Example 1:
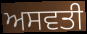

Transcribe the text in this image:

ਅਸਵਤੀ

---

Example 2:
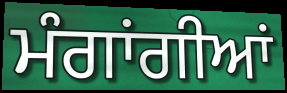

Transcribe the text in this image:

ਮੰਗਾਂਗੀਆਂ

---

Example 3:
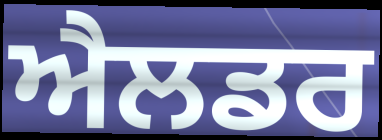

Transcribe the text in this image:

ਐਲਡਰ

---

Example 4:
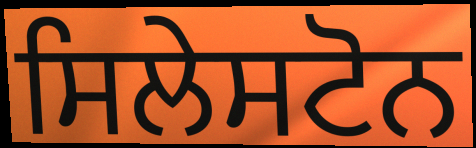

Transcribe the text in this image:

ਸਿਲੇਸਟੋਨ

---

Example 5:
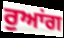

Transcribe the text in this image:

ਰੁਆਂਗ